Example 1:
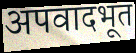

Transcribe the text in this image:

अपवादभूत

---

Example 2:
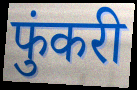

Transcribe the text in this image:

फुंकरी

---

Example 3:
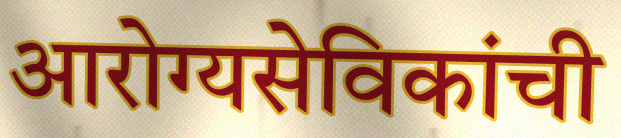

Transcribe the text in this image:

आरोग्यसेविकांची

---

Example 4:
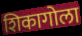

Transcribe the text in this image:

शिकागोला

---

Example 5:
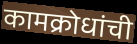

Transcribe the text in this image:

कामक्रोधांची